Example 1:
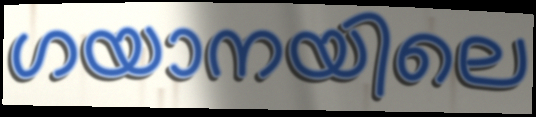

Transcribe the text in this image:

ഗയാനയിലെ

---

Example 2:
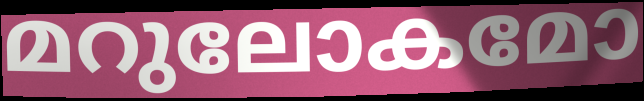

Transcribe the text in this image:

മറുലോകമോ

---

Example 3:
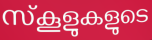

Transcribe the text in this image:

സ്‌കൂളുകളുടെ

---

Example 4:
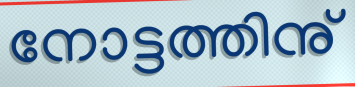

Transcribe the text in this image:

നോട്ടത്തിനു്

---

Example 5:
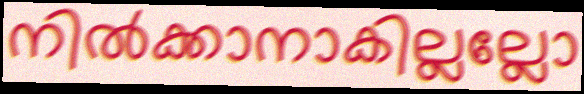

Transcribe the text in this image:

നിൽക്കാനാകില്ലല്ലോ